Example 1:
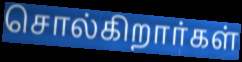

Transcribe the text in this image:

சொல்கிறார்கள்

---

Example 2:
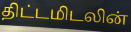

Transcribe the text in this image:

திட்டமிடலின்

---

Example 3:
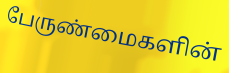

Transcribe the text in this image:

பேருண்மைகளின்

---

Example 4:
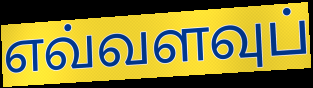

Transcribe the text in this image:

எவ்வளவுப்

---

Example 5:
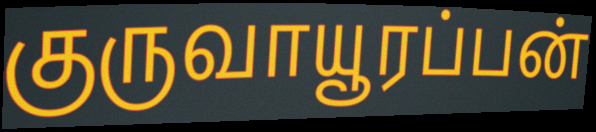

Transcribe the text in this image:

குருவாயூரப்பன்